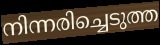
നിന്നരിച്ചെടുത്ത